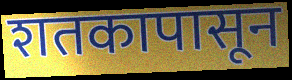
शतकापासून